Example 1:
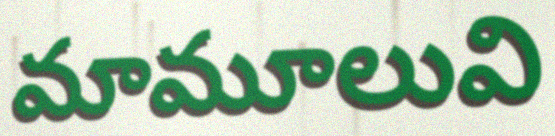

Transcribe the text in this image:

మామూలువి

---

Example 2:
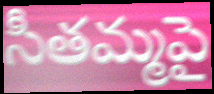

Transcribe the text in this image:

సీతమ్మపై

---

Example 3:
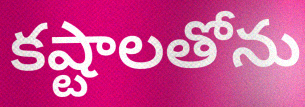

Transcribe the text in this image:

కష్టాలతోను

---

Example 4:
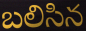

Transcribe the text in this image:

బలిసిన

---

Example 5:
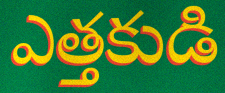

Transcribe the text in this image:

ఎత్తకుడి